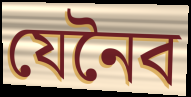
যেনৈব